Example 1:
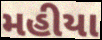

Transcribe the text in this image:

મહીયા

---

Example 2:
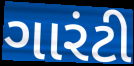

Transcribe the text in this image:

ગારંટી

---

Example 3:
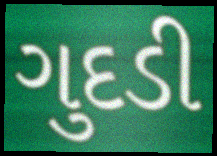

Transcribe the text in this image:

ગુદડી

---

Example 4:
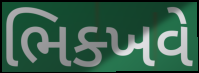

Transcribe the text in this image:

ભિક્ખવે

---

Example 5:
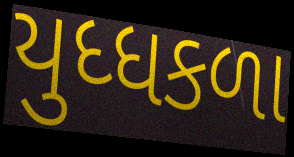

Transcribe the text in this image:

યુધ્ધકળા